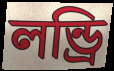
লন্ড্রি